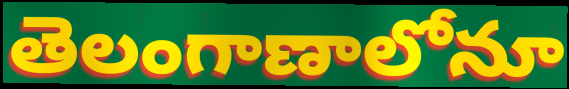
తెలంగాణాలోనూ